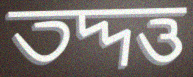
তদ্দত্ত